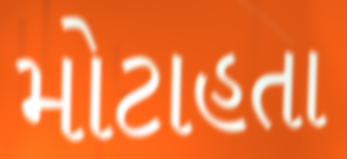
મોટાહતા